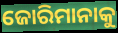
ଜୋରିମାନାକୁ